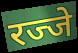
रज्जे